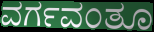
ವರ್ಗವಂತೂ